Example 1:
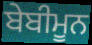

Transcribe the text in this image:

ਬੇਬੀਮੂਨ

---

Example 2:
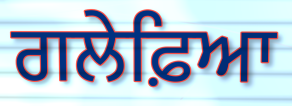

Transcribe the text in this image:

ਗਲੇਫ਼ਿਆ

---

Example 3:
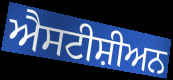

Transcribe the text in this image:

ਐਸਟੀਸ਼ੀਅਨ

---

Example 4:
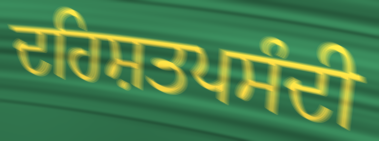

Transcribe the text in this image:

ਦਹਿਸ਼ਤਪਸੰਦੀ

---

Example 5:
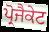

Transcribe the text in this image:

ਪ੍ਰੋਜੈਕੇਟ